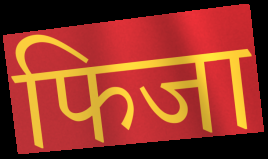
फिजा